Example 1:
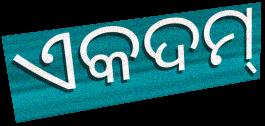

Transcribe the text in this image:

ଏକଦମ୍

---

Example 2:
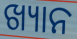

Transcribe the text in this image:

ଖ୍ୟାନ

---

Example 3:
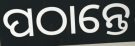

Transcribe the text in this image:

ପଠାନ୍ତେ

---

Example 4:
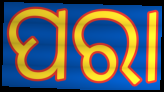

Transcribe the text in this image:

ପରା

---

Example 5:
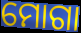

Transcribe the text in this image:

ମୋଗା